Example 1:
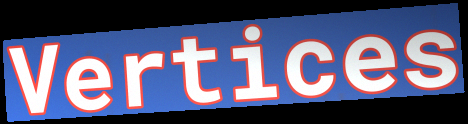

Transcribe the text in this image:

Vertices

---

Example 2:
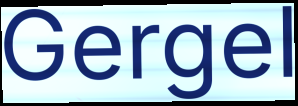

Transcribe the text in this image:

Gergel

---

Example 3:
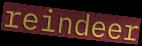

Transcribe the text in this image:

reindeer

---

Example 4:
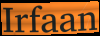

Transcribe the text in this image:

Irfaan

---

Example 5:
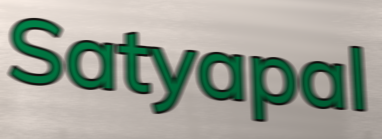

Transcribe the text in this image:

Satyapal